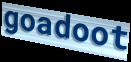
goadoot